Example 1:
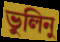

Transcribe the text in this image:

ভুলিনু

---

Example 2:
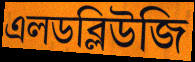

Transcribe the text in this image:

এলডব্লিউজি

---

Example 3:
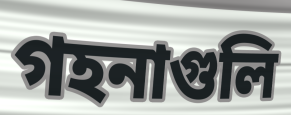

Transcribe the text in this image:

গহনাগুলি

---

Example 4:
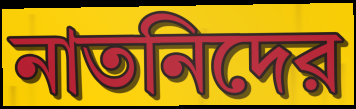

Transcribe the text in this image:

নাতনিদের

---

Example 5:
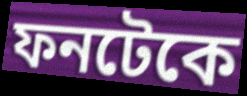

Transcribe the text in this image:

ফনটেকে